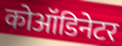
कोऑडिनेटर